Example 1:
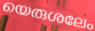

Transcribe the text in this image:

യെരുശലേം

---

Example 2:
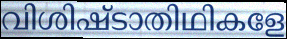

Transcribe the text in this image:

വിശിഷ്ടാതിഥികളേ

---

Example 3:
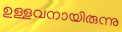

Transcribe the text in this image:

ഉള്ളവനായിരുന്നു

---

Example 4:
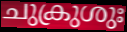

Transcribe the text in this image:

ചുക്രുശുഃ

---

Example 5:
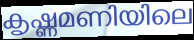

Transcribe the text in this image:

കൃഷ്ണമണിയിലെ